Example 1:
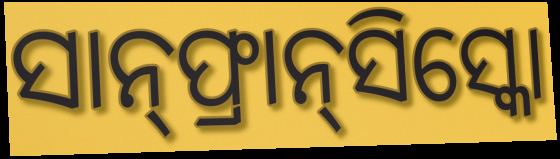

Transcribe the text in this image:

ସାନ୍‌ଫ୍ରାନ୍‌ସିସ୍କୋ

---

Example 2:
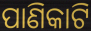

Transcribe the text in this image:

ପାଣିକାଟି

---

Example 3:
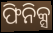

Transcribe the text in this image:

ଫିନିକ୍ସ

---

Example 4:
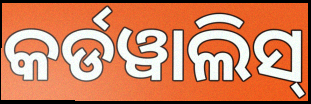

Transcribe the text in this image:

କର୍ଡୱାଲିସ୍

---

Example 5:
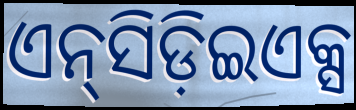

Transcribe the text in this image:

ଏନ୍‍ସିଡ଼ିଇଏକ୍ସ